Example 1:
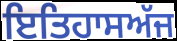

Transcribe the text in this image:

ਇਤਿਹਾਸਅੱਜ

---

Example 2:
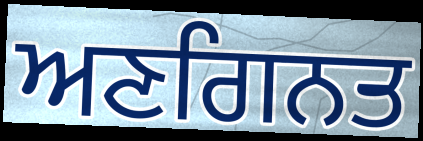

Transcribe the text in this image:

ਅਣਗਿਨਤ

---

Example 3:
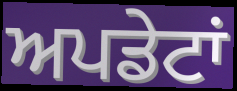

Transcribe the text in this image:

ਅਪਡੇਟਾਂ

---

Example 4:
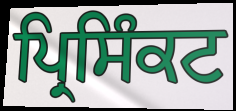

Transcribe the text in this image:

ਪ੍ਰਿਸਿੰਕਟ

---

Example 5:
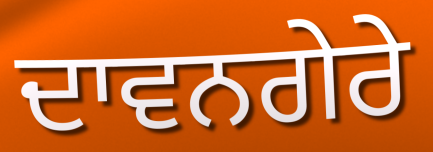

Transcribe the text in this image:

ਦਾਵਨਗੇਰੇ